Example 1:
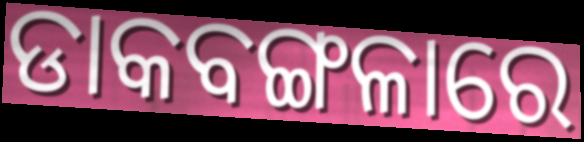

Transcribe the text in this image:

ଡାକବଙ୍ଗଳାରେ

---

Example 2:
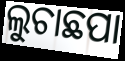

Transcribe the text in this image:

ଲୁଚାଛପା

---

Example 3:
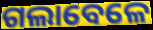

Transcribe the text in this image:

ଗଲାବେଳେ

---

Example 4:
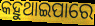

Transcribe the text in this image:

କହୁଥାଇପାରେ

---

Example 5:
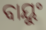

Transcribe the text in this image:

ବାୟୁଂ